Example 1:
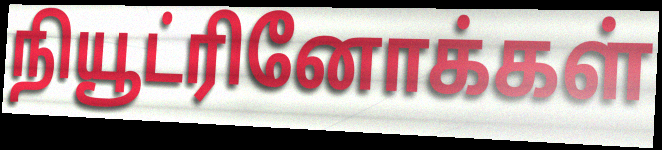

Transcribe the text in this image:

நியூட்ரினோக்கள்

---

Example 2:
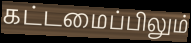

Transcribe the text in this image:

கட்டமைப்பிலும்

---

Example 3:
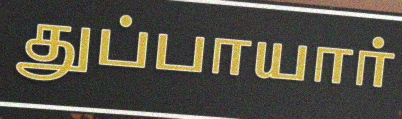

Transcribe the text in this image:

துப்பாயார்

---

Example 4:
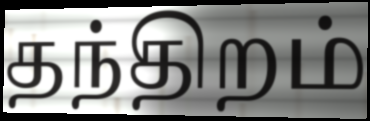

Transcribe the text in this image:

தந்திறம்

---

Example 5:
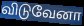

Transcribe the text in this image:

விடுவேனா